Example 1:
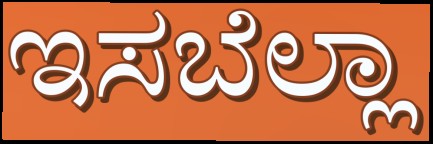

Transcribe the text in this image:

ಇಸಬೆಲ್ಲಾ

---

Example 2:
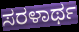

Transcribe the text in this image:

ಸರಳಾರ್ಥ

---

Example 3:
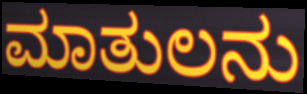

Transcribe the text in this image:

ಮಾತುಲನು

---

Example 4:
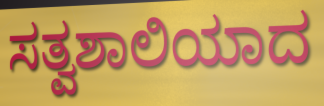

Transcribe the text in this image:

ಸತ್ವಶಾಲಿಯಾದ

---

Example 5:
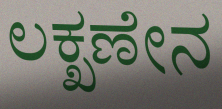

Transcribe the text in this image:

ಲಕ್ಖಣೇನ